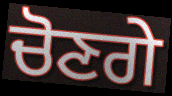
ਚੋਣਗੇ